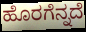
ಹೊರಗೆನ್ನದೆ